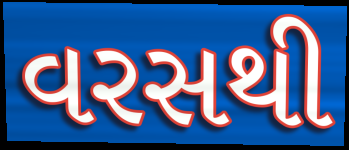
વરસથી